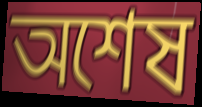
অশেষ